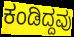
ಕಂಡಿದ್ದವು